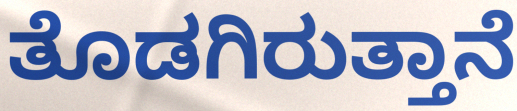
ತೊಡಗಿರುತ್ತಾನೆ